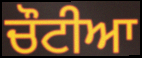
ਚੌਟੀਆ